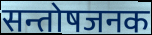
सन्तोषजनक